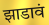
झाडावं